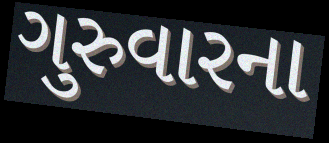
ગુરુવારના